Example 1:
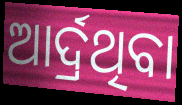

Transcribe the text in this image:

ଆର୍ଦ୍ରଥିବା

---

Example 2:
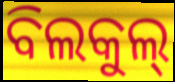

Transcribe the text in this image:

ବିଲକୁଲ୍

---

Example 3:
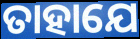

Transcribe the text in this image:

ତାହାଯେ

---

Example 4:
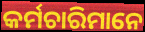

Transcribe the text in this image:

କର୍ମଚାରିମାନେ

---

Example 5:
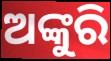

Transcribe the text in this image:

ଅଙ୍କୁରି